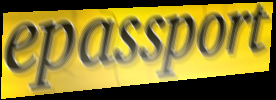
epassport